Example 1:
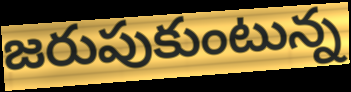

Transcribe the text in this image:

జరుపుకుంటున్న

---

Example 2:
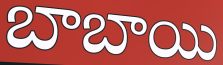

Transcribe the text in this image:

బాబాయి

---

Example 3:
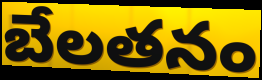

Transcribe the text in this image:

బేలతనం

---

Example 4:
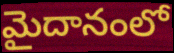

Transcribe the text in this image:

మైదానంలో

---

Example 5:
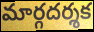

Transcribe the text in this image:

మార్గదర్శక